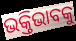
ଭକ୍ତିଭାବକୁ